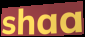
shaa